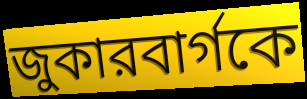
জুকারবার্গকে